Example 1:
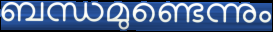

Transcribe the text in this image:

ബന്ധമുണ്ടെന്നും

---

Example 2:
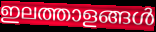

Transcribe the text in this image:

ഇലത്താളങ്ങൾ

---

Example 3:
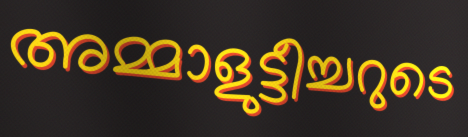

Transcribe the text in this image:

അമ്മാളുട്ടീച്ചറുടെ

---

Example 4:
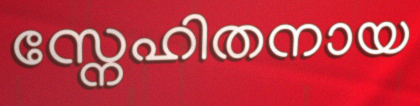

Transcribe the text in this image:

സ്നേഹിതനായ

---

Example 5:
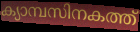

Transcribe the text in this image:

ക്യാമ്പസിനകത്ത്